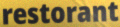
restorant